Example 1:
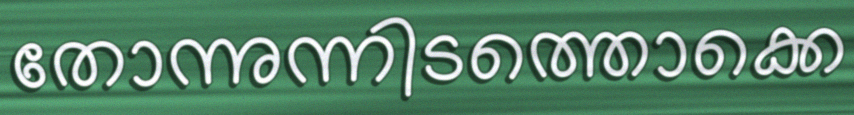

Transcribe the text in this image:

തോന്നുന്നിടത്തൊക്കെ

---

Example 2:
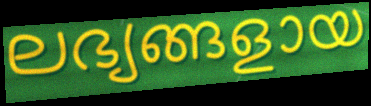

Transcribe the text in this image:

ലഭ്യങ്ങളായ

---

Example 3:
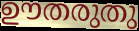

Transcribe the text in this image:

ഊതരുതു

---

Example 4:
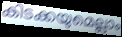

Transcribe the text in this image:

കിടക്കയുമെല്ലാം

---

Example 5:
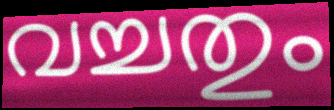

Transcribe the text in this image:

വച്ചതും